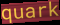
quark